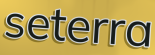
seterra